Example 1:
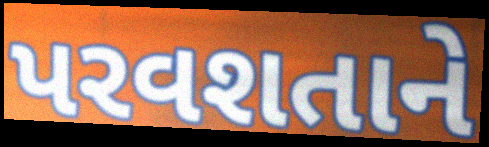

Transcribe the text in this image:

પરવશતાને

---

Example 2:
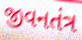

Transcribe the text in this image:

જીવનતંત્ર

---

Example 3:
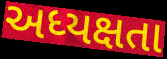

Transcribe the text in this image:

અધ્યક્ષતા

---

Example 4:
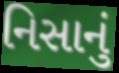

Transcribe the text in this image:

નિસાનું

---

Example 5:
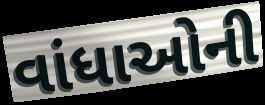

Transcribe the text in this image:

વાંધાઓની